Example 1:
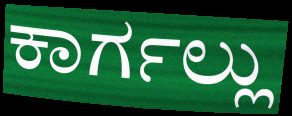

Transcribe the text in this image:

ಕಾರ್ಗಲ್ಲು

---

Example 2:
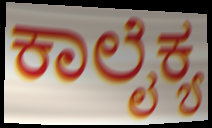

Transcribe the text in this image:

ಕಾಲೈಕ್ಯ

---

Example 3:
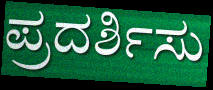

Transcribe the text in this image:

ಪ್ರದರ್ಶಿಸು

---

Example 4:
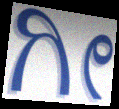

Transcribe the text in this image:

ಗೀ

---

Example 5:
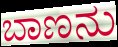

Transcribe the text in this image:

ಬಾಣನು